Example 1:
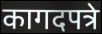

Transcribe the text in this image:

कागदपत्रे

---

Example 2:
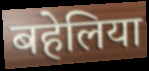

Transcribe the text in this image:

बहेलिया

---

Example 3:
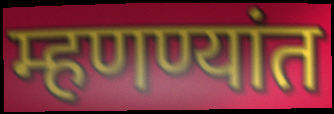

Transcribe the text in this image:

म्हणण्यांत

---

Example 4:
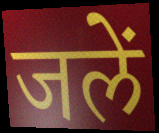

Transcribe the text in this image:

जलें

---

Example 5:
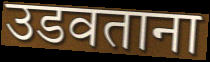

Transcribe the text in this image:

उडवताना